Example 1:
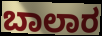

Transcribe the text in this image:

ಬಾಲಾರ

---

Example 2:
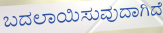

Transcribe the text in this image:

ಬದಲಾಯಿಸುವುದಾಗಿದೆ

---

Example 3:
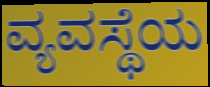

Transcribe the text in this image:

ವ್ಯವಸ್ಥೆಯ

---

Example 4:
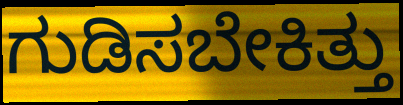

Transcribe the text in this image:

ಗುಡಿಸಬೇಕಿತ್ತು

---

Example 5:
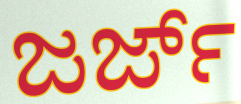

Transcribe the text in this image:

ಜರ್ಜ್